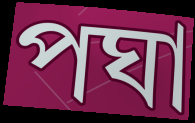
পঘা